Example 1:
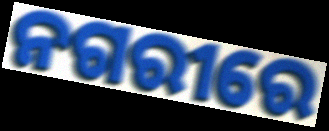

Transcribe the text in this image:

ନଗରୀରେ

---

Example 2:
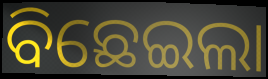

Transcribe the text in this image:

ବିଛେଇଲା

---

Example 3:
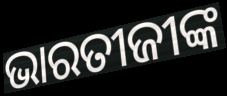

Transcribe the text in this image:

ଭାରତୀଜୀଙ୍କ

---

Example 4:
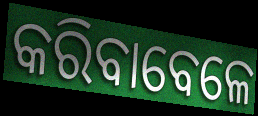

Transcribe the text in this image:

କରିବାବେଳେ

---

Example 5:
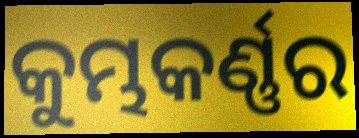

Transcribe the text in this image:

କୁମ୍ଭକର୍ଣ୍ଣର